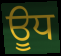
ਊਧ